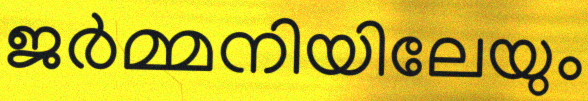
ജർമ്മനിയിലേയും